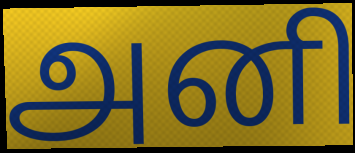
அனி